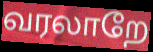
வரலாறே